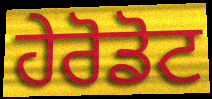
ਹੇਰੋਡੋਟ